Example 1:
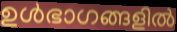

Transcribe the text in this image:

ഉൾഭാഗങ്ങളിൽ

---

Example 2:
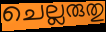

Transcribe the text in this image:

ചെല്ലരുതു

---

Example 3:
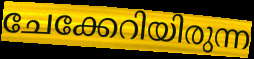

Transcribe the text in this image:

ചേക്കേറിയിരുന്ന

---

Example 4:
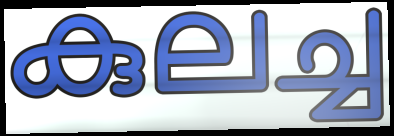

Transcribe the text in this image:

കുലച്ച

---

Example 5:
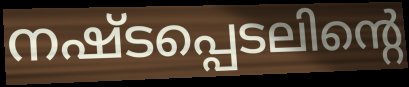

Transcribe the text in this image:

നഷ്ടപ്പെടലിന്റെ